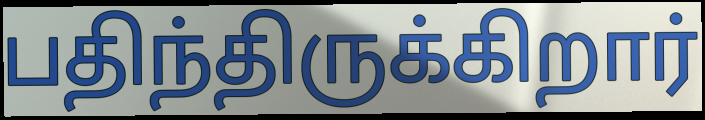
பதிந்திருக்கிறார்